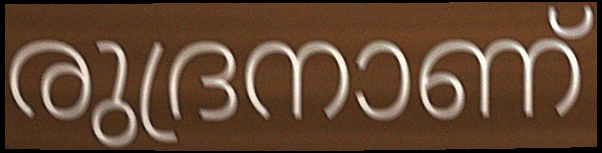
രുദ്രനാണ്